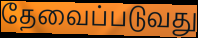
தேவைப்படுவது